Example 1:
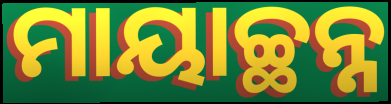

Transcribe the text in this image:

ମାୟାଚ୍ଛନ୍ନ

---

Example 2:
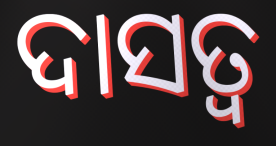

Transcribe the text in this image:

ଦାସତ୍ଵ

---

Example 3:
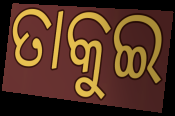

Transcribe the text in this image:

ତାକୁଇ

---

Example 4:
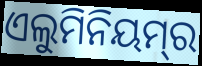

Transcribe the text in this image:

ଏଲୁମିନିୟମ୍‌ର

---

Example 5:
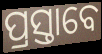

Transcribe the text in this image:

ପ୍ରସ୍ତାବେ